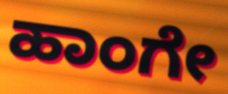
ಹಾಂಗೇ